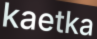
kaetka